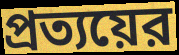
প্রত্যয়ের